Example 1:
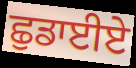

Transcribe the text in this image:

ਛੁਡਾਈਏ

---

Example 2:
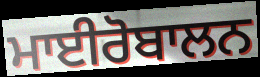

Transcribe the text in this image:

ਮਾਈਰੋਬਾਲਨ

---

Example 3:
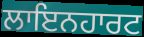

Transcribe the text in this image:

ਲਾਇਨਹਾਰਟ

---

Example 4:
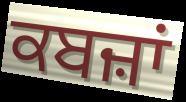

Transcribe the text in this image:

ਕਬਜ਼ਾਂ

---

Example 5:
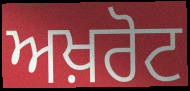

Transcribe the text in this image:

ਅਖ਼ਰੋਟ